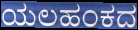
ಯಲಹಂಕದ